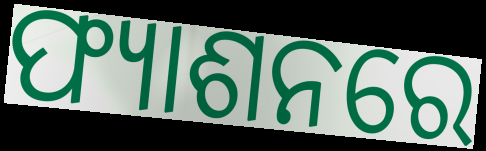
ଫ୍ୟାଶନରେ